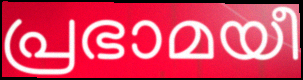
പ്രഭാമയീ